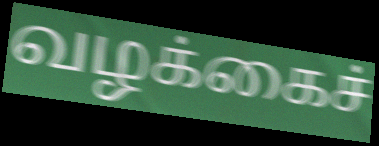
வழக்கைச்